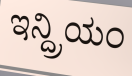
ಇನ್ದ್ರಿಯಂ